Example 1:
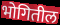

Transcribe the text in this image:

भोगितील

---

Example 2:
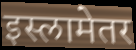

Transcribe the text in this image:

इस्लामेतर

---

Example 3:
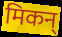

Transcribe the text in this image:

मिकन्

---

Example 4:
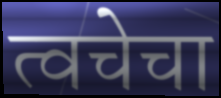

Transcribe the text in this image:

त्वचेचा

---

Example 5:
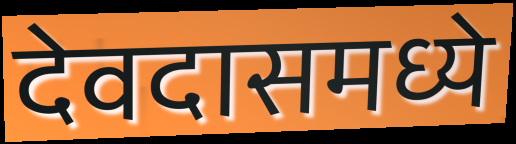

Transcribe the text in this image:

देवदासमध्ये